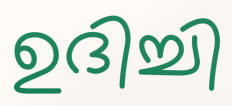
ഉദിച്ചി